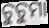
ଚୁଚୁମା